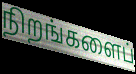
நிறங்களைப்